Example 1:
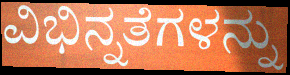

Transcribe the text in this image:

ವಿಭಿನ್ನತೆಗಳನ್ನು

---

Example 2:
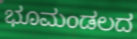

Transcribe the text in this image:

ಭೂಮಂಡಲದ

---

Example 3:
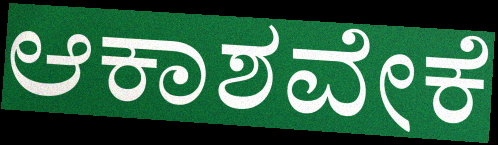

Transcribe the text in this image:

ಆಕಾಶವೇಕೆ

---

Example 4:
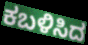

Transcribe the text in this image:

ಕಬಳಿಸಿದ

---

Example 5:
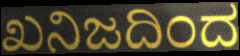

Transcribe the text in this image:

ಖನಿಜದಿಂದ